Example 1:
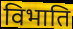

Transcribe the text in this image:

विभाति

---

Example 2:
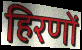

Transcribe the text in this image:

हिरणों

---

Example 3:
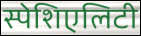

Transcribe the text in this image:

स्पेशिएलिटी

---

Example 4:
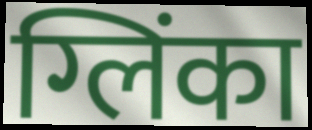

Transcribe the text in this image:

ग्लिंका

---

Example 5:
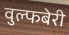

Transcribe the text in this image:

वुल्फबेरी